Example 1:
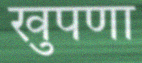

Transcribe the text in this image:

खुपणा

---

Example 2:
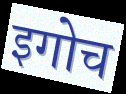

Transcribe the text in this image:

इगोच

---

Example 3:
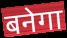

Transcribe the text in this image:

बनेगा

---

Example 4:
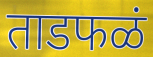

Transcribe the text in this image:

ताडफळं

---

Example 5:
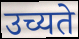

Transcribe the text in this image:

उच्यते